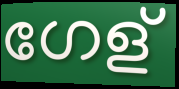
ഗേള്